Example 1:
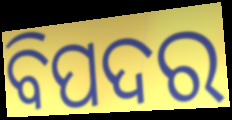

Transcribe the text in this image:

ବିପଦର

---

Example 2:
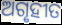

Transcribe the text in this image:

ଅଗୃହୀତ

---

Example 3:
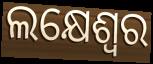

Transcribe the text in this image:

ଲକ୍ଷେଶ୍ଵର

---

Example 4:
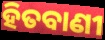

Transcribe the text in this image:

ହିତବାଣୀ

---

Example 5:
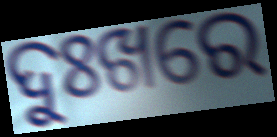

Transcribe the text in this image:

ଦୁଃଖରେ